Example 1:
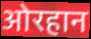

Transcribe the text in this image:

ओरहान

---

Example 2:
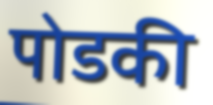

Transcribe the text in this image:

पोडकी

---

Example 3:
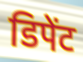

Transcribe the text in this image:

डिपेंट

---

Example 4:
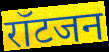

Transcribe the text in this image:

रॉटजन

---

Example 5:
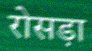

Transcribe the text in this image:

रोसड़ा